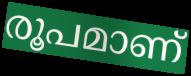
രൂപമാണ്